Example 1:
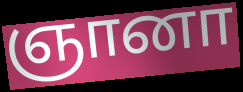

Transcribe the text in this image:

ஞானா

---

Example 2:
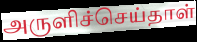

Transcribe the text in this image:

அருளிச்செய்தாள்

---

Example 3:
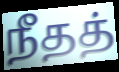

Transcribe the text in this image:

நீதத்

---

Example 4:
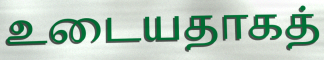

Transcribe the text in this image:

உடையதாகத்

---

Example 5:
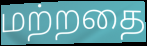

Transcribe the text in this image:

மற்றதை